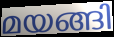
മയങ്ങി